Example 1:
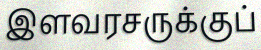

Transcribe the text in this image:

இளவரசருக்குப்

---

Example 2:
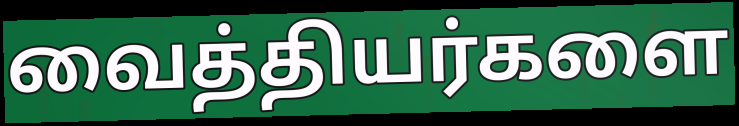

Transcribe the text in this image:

வைத்தியர்களை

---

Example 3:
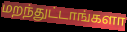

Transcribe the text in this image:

மறந்துட்டாங்களா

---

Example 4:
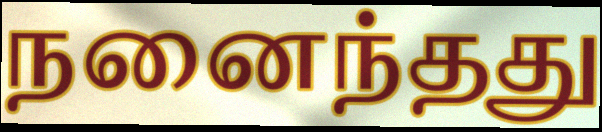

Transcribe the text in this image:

நனைந்தது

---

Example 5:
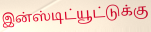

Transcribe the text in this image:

இன்ஸ்டிட்யூட்டுக்கு